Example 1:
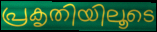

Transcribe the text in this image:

പ്രകൃതിയിലൂടെ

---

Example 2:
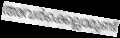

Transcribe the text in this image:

അവർക്കെല്ലാമുണ്ട്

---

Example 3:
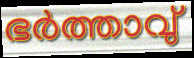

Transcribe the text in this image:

ഭർത്താവു്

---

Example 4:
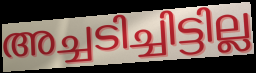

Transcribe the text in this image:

അച്ചടിച്ചിട്ടില്ല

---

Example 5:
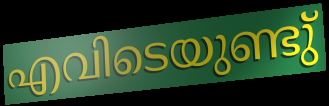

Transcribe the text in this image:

എവിടെയുണ്ടു്